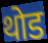
थोड